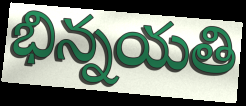
భిన్నయతి